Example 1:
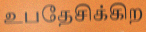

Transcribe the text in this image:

உபதேசிக்கிற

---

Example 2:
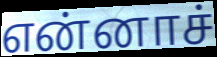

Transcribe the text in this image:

என்னாச்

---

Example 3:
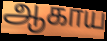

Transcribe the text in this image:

ஆகாய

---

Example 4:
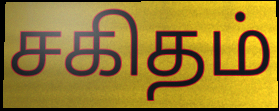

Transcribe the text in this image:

சகிதம்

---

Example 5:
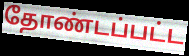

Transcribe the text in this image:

தோண்டப்பட்ட